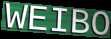
WEIBO